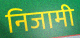
निजामी